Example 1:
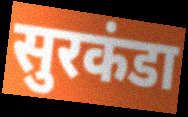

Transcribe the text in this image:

सुरकंडा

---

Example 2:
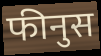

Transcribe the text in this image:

फीनुस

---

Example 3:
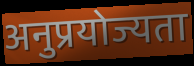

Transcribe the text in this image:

अनुप्रयोज्यता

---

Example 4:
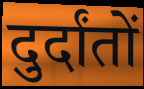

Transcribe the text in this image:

दुर्दांतों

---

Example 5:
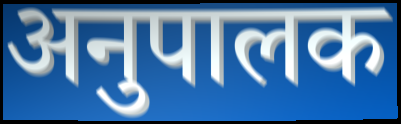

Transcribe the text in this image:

अनुपालक